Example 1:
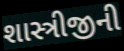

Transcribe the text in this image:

શાસ્ત્રીજીની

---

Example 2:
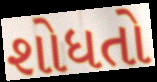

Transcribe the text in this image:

શોધતો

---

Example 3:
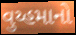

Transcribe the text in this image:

વુય્હમાનો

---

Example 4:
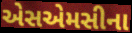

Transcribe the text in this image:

એસએમસીના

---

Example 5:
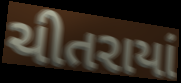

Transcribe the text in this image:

ચીતરાયાં